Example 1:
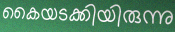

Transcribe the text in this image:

കൈയടക്കിയിരുന്നു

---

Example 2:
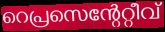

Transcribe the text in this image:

റെപ്രസെന്റേറ്റീവ്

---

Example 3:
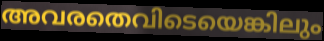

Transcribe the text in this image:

അവരതെവിടെയെങ്കിലും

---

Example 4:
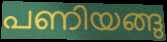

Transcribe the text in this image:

പണിയങ്ങു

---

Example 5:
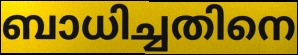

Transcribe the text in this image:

ബാധിച്ചതിനെ